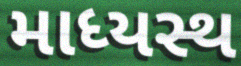
માધ્યસ્થ